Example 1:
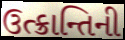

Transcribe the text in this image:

ઉત્ક્રાન્તિની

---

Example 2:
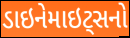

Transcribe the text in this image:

ડાઇનેમાઇટ્સનો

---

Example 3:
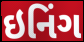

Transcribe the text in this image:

ઇનિંગ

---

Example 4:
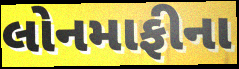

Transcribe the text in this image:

લોનમાફીના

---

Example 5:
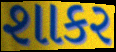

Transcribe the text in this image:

શાકર